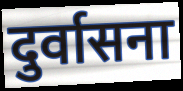
दुर्वासना